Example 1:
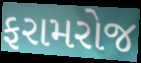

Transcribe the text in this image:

ફરામરોજ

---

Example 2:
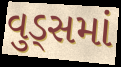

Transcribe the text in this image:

વુડ્સમાં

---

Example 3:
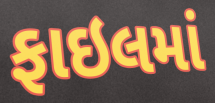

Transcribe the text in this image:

ફાઇલમાં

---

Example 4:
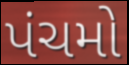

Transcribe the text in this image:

પંચમો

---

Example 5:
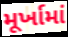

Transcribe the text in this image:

મૂર્ખામાં